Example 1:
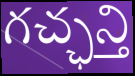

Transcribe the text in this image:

గచ్ఛన్తి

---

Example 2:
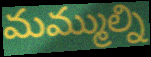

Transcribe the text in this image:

మమ్ముల్ని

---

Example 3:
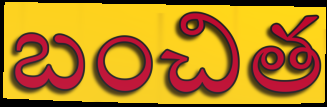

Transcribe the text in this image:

బంచిత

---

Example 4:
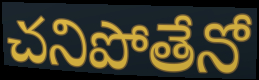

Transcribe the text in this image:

చనిపోతేనో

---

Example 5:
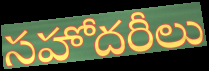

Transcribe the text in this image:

సహోదరీలు